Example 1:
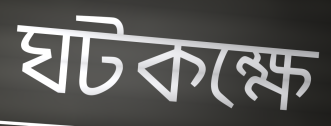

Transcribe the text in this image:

ঘটকক্ষে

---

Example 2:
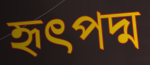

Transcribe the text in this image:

হৃৎপদ্ম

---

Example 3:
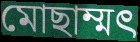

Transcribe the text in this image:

মোছাম্মৎ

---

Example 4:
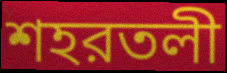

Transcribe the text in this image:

শহরতলী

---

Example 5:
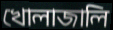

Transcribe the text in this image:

খোলাজালি